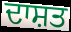
ਦਾਸ਼ਤ